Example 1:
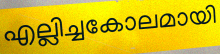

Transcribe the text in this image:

എല്ലിച്ചകോലമായി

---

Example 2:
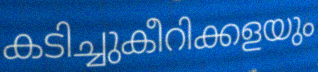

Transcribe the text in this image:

കടിച്ചുകീറിക്കളയും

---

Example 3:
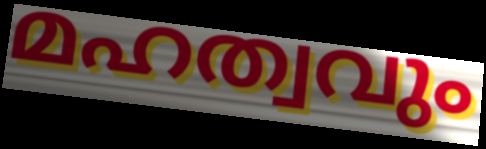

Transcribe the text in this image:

മഹത്വവും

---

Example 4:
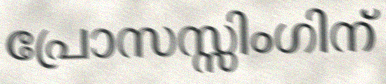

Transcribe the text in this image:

പ്രോസസ്സിംഗിന്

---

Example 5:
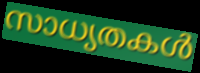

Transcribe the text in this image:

സാധ്യതകൾ